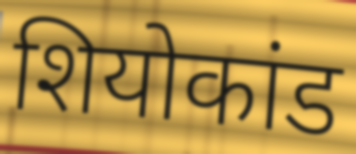
शियोकांड